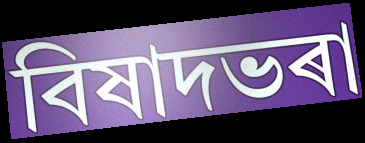
বিষাদভৰা